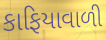
કાફિયાવાળી